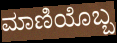
ಮಾಣಿಯೊಬ್ಬ